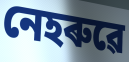
নেহৰুৱে